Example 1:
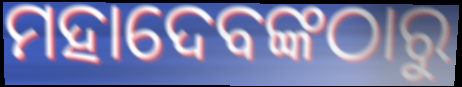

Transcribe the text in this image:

ମହାଦେବଙ୍କଠାରୁ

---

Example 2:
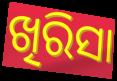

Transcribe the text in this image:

ଖିରିସା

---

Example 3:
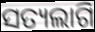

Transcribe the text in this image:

ସତ୍ୟଲାଗି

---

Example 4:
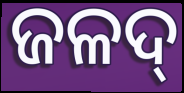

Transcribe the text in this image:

ଜଳଦ୍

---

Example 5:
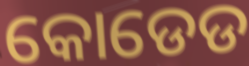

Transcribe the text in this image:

କୋଡେଡ